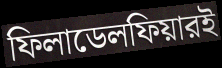
ফিলাডেলফিয়ারই